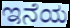
ಇನೆಯ